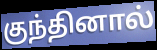
குந்தினால்